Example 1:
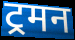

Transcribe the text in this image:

ट्रमन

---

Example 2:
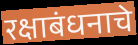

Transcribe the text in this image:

रक्षाबंधनाचे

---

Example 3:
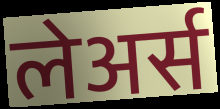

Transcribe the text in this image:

लेअर्स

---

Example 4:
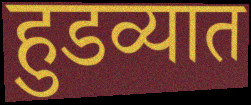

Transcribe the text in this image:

हुडव्यात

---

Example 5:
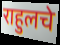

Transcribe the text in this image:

राहुलचे